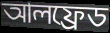
আলফ্রেড